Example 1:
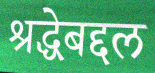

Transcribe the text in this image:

श्रद्धेबद्दल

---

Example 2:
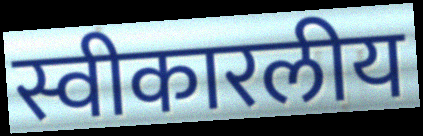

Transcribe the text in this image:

स्वीकारलीय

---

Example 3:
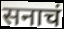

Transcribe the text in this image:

सनाचं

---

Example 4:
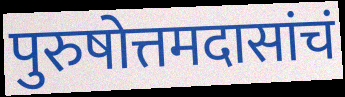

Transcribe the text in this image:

पुरुषोत्तमदासांचं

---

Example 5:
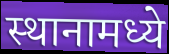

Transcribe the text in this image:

स्थानामध्ये